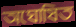
অঘোষিত